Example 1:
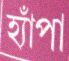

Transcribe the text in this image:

হ্যাঁপা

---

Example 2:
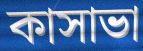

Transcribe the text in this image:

কাসাভা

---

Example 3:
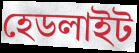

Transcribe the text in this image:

হেডলাইট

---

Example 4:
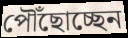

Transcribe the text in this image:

পৌঁছোচ্ছেন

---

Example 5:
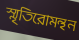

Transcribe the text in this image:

স্মৃতিরোমন্থন